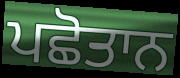
ਪਛੋਤਾਨ